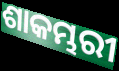
ଶାକମ୍ଭରୀ